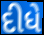
દીધે